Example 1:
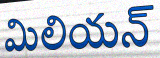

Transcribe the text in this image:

మిలియన్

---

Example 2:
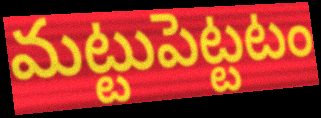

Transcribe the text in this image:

మట్టుపెట్టటం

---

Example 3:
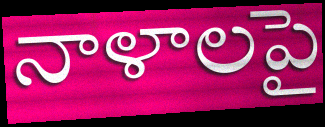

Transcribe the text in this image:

నాళాలపై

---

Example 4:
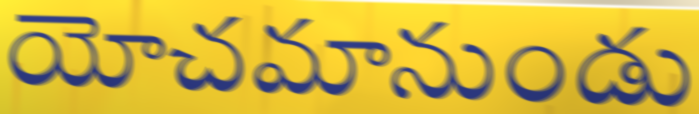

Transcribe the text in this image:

యోచమానుండు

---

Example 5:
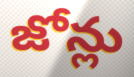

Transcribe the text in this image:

జోన్లు